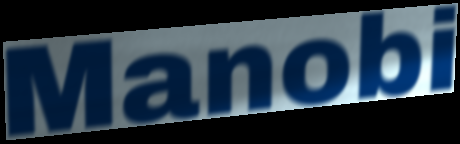
Manobi